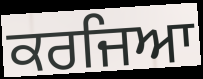
ਕਰਜਿਆ